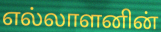
எல்லாளனின்